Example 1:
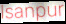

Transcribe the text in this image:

Isanpur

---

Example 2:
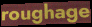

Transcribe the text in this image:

roughage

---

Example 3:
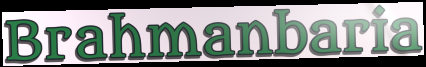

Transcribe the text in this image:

Brahmanbaria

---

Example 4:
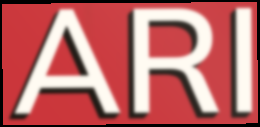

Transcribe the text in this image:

ARI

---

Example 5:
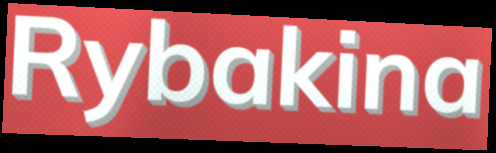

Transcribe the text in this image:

Rybakina